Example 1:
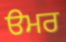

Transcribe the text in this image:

ੳਮਰ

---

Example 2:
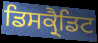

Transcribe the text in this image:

ਡਿਸਕ੍ਰੈਡਿਟ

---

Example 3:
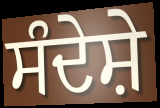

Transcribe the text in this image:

ਸੰਦੇਸ਼ੇ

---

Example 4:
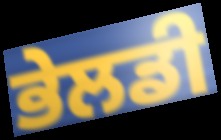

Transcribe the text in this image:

ਭੇਲਡੀ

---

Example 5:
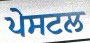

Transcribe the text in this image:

ਪੇਸਟਲ